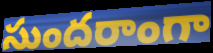
సుందరాంగా